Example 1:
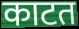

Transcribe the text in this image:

काटत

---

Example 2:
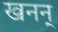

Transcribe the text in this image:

खनन्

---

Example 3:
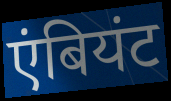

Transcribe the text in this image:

एंबियंट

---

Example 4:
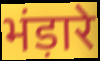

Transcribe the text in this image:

भंड़ारे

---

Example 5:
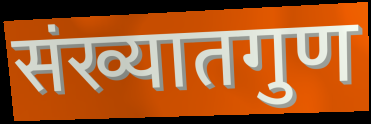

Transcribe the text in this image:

संख्यातगुण